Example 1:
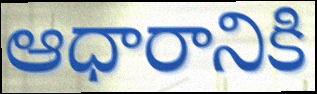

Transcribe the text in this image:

ఆధారానికి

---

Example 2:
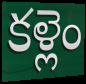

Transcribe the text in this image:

కళ్లెం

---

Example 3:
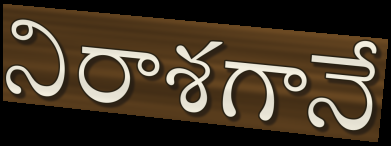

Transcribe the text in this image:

నిరాశగానే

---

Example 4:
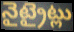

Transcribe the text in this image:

నైట్రైట్లు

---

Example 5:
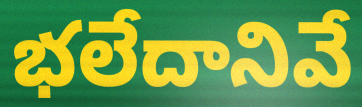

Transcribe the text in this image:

భలేదానివే